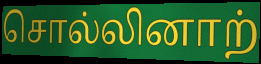
சொல்லினாற்